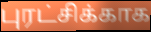
புரட்சிக்காக